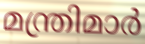
മന്ത്രിമാർ